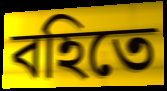
বহিতে